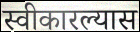
स्वीकारल्यास